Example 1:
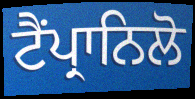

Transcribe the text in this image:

ਟੈਂਪ੍ਰਾਨਿਲੋ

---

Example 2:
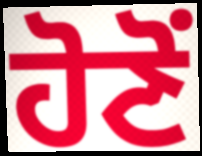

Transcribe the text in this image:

ਹੋਣੋਂ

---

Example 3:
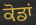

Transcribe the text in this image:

ਕੋਡਾਂ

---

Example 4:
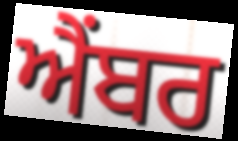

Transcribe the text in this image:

ਐਂਬਰ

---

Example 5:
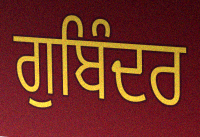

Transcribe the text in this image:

ਗੁਬਿੰਦਰ